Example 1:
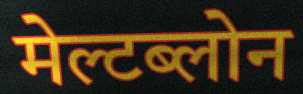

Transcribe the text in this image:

मेल्टब्लोन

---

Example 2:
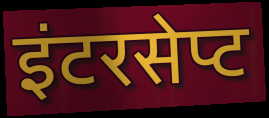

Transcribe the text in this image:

इंटरसेप्ट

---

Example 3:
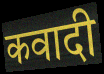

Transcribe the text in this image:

कवादी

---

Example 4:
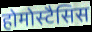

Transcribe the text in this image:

होमोस्टैसिस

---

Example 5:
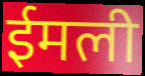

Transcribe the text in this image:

ईमली